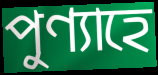
পুণ্যাহে